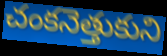
చంకనెత్తుకుని